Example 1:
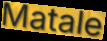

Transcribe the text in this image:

Matale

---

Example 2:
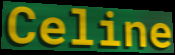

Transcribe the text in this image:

Celine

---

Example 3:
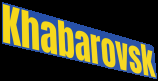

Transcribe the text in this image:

Khabarovsk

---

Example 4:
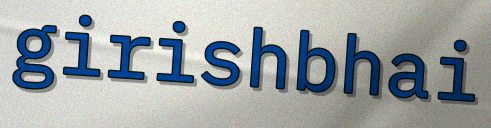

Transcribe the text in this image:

girishbhai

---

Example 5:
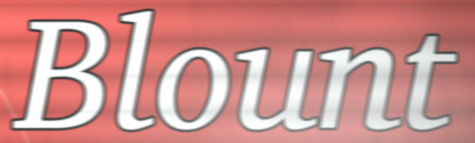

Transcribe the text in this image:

Blount